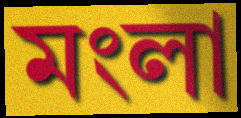
মংলা